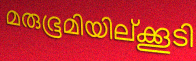
മരുഭൂമിയില്ക്കൂടി